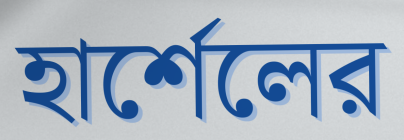
হার্শেলের